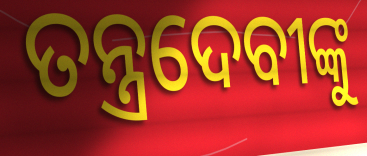
ତନ୍ତ୍ରଦେବୀଙ୍କୁ